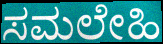
ಸಮಲೇಹಿ